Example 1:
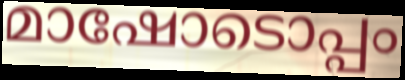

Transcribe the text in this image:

മാഷോടൊപ്പം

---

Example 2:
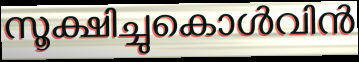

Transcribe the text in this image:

സൂക്ഷിച്ചുകൊൾവിൻ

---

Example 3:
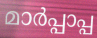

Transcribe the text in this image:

മാർപ്പാപ്പ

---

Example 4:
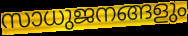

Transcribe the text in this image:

സാധുജനങ്ങളും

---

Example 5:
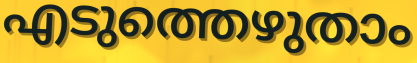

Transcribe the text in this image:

എടുത്തെഴുതാം